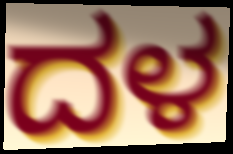
ದಳ